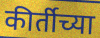
कीर्तीच्या